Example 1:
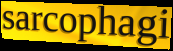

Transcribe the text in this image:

sarcophagi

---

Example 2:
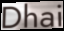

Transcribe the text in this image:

Dhai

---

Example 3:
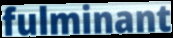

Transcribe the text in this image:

fulminant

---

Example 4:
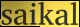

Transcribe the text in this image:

saikal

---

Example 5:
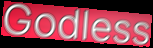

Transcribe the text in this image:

Godless